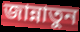
জান্নাতুন